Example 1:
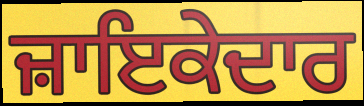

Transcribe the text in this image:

ਜ਼ਾਇਕੇਦਾਰ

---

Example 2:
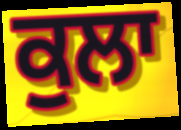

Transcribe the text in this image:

ਕੁਲਾ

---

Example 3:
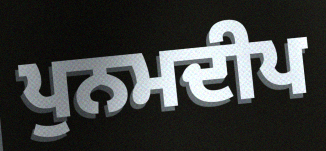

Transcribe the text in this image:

ਪੁਨਮਦੀਪ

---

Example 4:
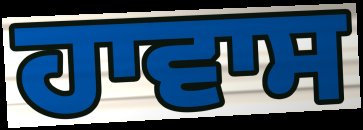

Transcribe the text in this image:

ਹਾਵਾਸ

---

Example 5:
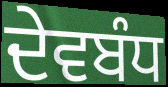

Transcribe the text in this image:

ਦੇਵਬੰਧ